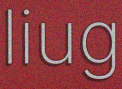
liug